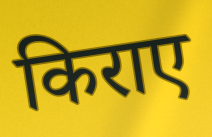
किराए